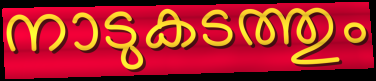
നാടുകടത്തും